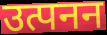
उत्पनन